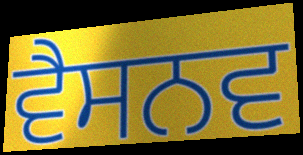
ਵੈਸਨਵ